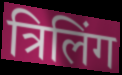
त्रिलिंग